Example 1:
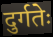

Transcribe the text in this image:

दुर्गतेः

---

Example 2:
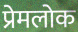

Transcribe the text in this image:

प्रेमलोक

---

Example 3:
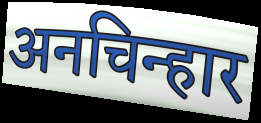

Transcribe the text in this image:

अनचिन्हार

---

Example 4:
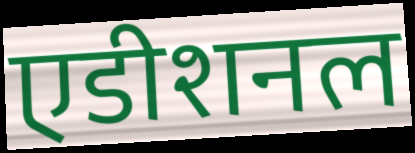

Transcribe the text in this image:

एडीशनल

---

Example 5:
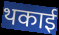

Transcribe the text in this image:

थकाई